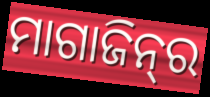
ମାଗାଜିନ୍‍ର